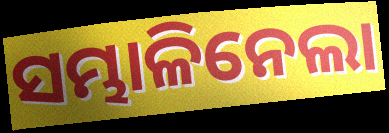
ସମ୍ଭାଳିନେଲା